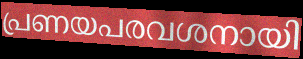
പ്രണയപരവശനായി